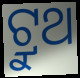
ଟ୍ରୁଥ